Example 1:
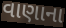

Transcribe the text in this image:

વાણાના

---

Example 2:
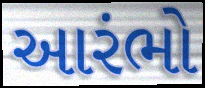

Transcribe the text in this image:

આરંભો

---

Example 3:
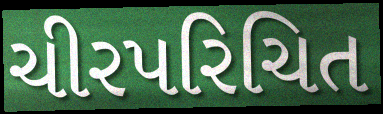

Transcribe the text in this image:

ચીરપરિચિત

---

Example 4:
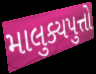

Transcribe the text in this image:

માલુક્યપુત્તો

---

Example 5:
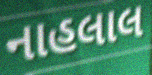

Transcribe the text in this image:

નાહલાલ